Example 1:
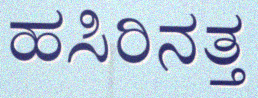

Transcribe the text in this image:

ಹಸಿರಿನತ್ತ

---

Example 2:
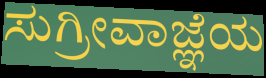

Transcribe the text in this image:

ಸುಗ್ರೀವಾಜ್ಞೆಯ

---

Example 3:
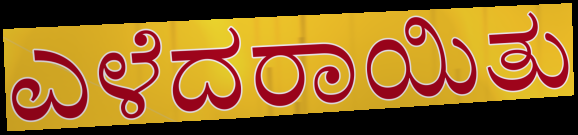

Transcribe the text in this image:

ಎಳೆದರಾಯಿತು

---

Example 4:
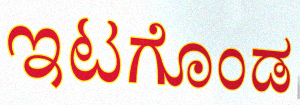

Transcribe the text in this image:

ಇಟಗೊಂಡ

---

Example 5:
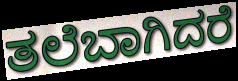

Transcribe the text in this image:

ತಲೆಬಾಗಿದರೆ